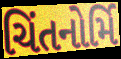
ચિંતનોર્મિ